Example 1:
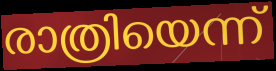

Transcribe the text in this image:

രാത്രിയെന്ന്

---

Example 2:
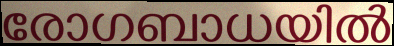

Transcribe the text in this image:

രോഗബാധയിൽ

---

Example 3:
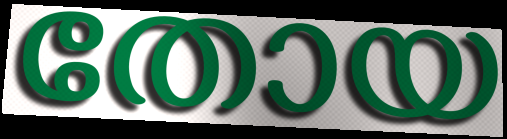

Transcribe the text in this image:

തോയ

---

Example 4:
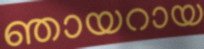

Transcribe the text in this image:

ഞായറായ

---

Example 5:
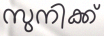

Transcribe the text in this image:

സുനിക്ക്